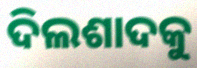
ଦିଲଶାଦକୁ